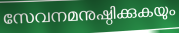
സേവനമനുഷ്ഠിക്കുകയും